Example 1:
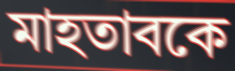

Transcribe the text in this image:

মাহতাবকে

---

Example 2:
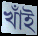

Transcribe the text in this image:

খাঁই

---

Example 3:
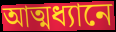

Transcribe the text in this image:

আত্মধ্যানে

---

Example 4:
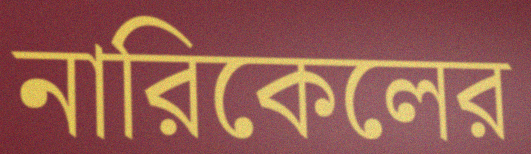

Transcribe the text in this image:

নারিকেলের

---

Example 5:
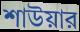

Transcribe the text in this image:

শাউয়ার